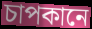
চাপকানে